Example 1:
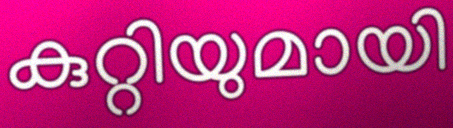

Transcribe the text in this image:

കുറ്റിയുമായി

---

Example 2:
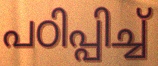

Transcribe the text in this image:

പഠിപ്പിച്ച്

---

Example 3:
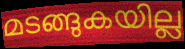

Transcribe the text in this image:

മടങ്ങുകയില്ല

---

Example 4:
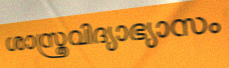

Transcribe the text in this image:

ശാസ്ത്രവിദ്യാഭ്യാസം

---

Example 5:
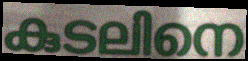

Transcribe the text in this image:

കുടലിനെ